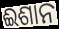
ଈଶାନ